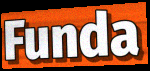
Funda